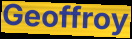
Geoffroy